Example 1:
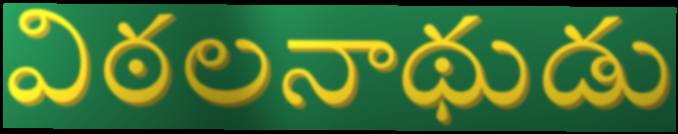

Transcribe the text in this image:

విఠలనాథుడు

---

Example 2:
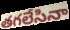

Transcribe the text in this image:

తగలేసినా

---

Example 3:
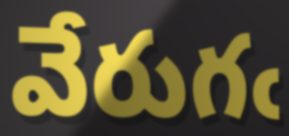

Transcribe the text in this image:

వేరుగఁ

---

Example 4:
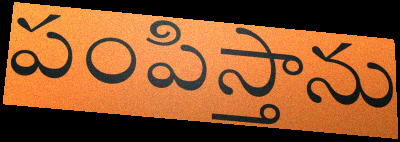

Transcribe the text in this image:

పంపిస్తాను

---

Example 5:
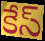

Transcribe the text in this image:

కేస్